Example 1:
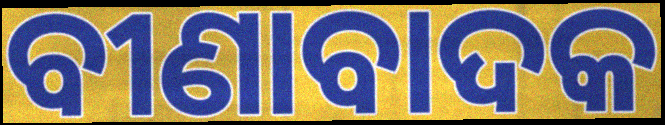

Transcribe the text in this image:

ବୀଣାବାଦକ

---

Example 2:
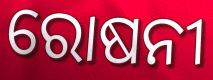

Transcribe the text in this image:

ରୋଷନୀ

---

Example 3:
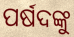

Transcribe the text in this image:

ପର୍ଷଦଙ୍କୁ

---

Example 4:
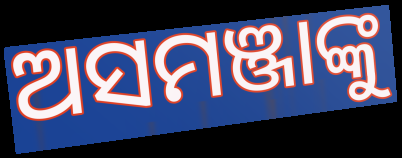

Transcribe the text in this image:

ଅସମଞ୍ଜାଙ୍କୁ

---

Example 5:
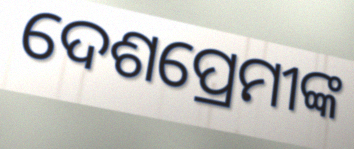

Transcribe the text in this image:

ଦେଶପ୍ରେମୀଙ୍କ